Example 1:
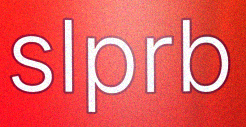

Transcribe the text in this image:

slprb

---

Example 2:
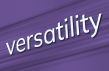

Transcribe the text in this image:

versatility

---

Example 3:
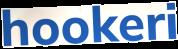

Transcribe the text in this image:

hookeri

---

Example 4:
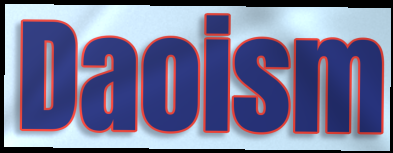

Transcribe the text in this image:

Daoism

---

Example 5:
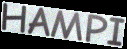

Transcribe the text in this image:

HAMPI